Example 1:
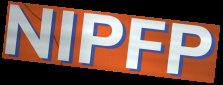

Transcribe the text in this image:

NIPFP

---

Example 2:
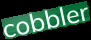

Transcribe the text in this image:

cobbler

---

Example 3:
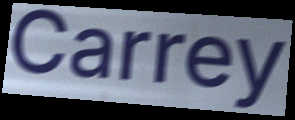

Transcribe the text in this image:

Carrey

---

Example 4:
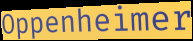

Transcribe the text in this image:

Oppenheimer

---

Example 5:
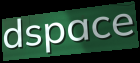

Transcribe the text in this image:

dspace